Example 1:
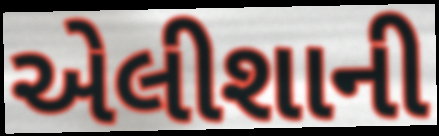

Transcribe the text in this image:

એલીશાની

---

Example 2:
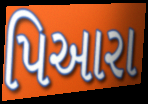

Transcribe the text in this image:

પિઆરા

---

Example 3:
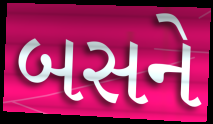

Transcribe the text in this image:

બસને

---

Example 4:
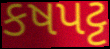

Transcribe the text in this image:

કષપટ્ટ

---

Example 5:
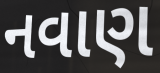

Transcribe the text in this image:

નવાણ